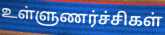
உள்ளுணர்ச்சிகள்